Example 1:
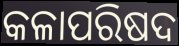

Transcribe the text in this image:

କଳାପରିଷଦ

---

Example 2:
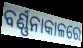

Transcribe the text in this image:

ବର୍ଣ୍ଣନାକାଳରେ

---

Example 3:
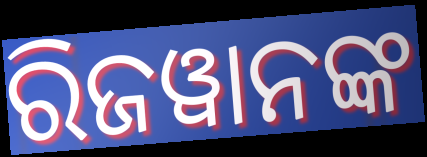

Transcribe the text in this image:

ରିଜୱାନଙ୍କ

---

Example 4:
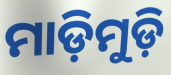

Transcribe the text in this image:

ମାଡ଼ିମୁଡ଼ି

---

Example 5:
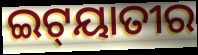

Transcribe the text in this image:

ଇଟ୍‍ୟାତୀର